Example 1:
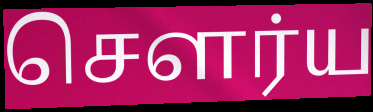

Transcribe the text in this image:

சௌர்ய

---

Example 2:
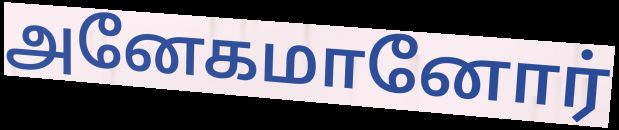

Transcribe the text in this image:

அனேகமானோர்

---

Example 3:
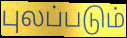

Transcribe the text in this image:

புலப்படும்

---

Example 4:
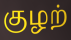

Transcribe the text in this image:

குழற்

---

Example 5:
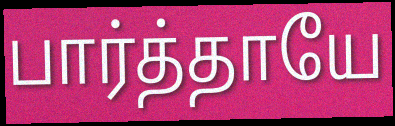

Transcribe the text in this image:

பார்த்தாயே